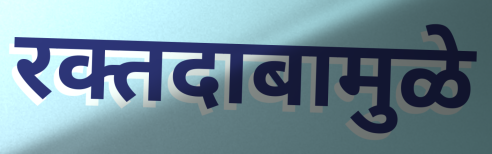
रक्तदाबामुळे